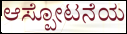
ಆಸ್ಪೋಟನೆಯ